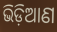
ଭିଡ଼ିଆଣ